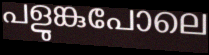
പളുങ്കുപോലെ